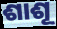
ଶାଶୂ